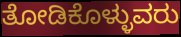
ತೋಡಿಕೊಳ್ಳುವರು